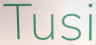
Tusi